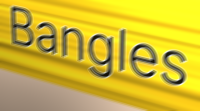
Bangles